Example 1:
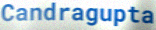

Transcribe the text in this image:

Candragupta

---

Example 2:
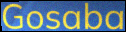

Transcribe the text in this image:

Gosaba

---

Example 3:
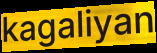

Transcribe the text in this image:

kagaliyan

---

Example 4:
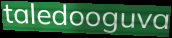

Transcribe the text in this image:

taledooguva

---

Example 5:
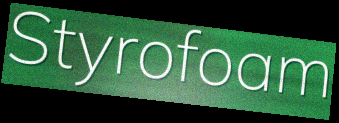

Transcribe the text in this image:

Styrofoam